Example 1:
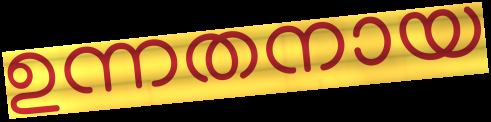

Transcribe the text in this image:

ഉന്നതനായ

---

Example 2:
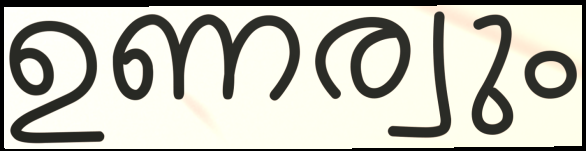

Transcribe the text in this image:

ഉണര്വും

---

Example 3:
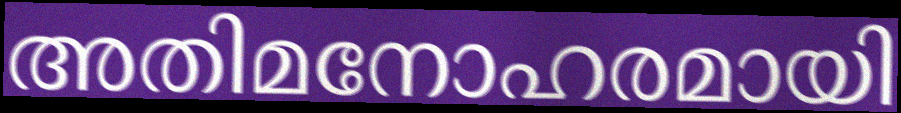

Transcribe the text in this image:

അതിമനോഹരമായി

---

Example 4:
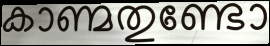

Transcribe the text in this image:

കാണ്മതുണ്ടോ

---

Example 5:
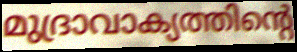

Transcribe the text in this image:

മുദ്രാവാക്യത്തിന്റെ